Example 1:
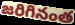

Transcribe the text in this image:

జరిగినంత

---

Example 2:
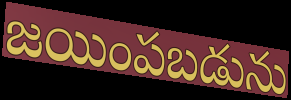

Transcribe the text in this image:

జయింపబడును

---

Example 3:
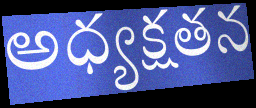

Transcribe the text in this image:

అధ్యక్షతన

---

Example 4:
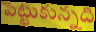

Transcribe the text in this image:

పెట్టుకున్నది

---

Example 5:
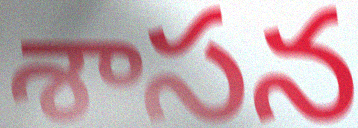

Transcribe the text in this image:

శాసన